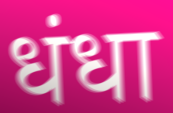
धंधा